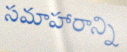
సమాహారాన్ని